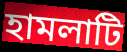
হামলাটি